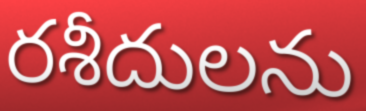
రశీదులను